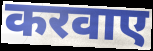
करवाए